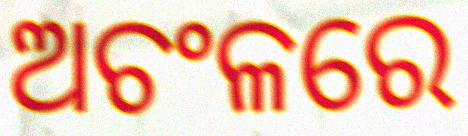
ଅଚଂଳରେ